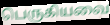
பெருகியவை